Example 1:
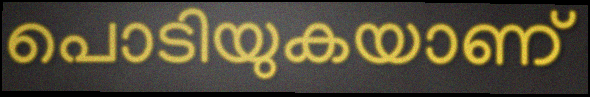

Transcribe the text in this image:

പൊടിയുകയാണ്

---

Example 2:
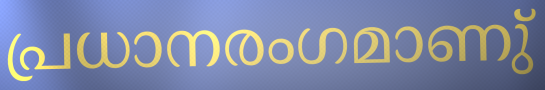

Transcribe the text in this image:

പ്രധാനരംഗമാണു്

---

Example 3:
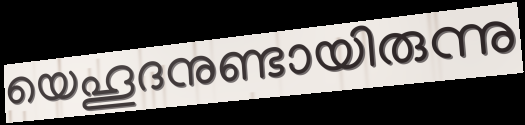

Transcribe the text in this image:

യെഹൂദനുണ്ടായിരുന്നു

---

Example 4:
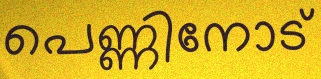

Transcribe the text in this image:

പെണ്ണിനോട്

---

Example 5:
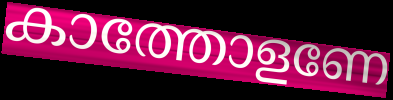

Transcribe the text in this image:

കാത്തോളണേ